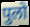
पुलो